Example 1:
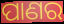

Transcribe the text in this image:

ପାଣର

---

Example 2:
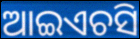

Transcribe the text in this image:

ଆଇଏଚସି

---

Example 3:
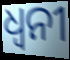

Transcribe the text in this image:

ଧ୍ବନୀ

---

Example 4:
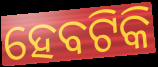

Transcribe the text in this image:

ହେବଟିକି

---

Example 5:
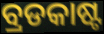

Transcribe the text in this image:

ବ୍ରଡକାଷ୍ଟ